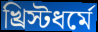
খ্রিস্টধর্মে